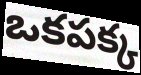
ఒకపక్క